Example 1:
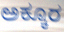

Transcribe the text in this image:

ಅಕ್ಕೂರ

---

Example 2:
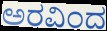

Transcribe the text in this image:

ಅರವಿಂದ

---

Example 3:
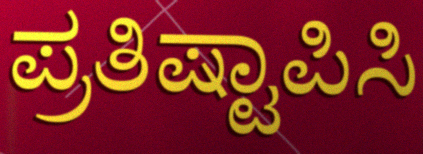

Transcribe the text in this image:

ಪ್ರತಿಷ್ಟಾಪಿಸಿ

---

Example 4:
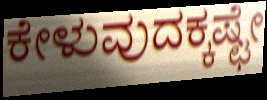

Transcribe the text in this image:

ಕೇಳುವುದಕ್ಕಷ್ಟೇ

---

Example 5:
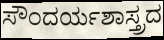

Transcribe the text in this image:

ಸೌಂದರ್ಯಶಾಸ್ತ್ರದ